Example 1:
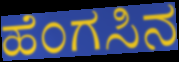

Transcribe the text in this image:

ಹೆಂಗಸಿನ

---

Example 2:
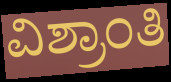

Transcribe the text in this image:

ವಿಶ್ರಾಂತಿ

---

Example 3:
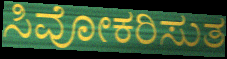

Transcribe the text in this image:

ಸಿವೋಕರಿಸುತ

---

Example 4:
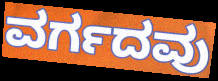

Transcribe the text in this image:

ವರ್ಗದವು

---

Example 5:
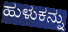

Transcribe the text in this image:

ಹುಳುಕನ್ನು